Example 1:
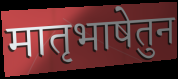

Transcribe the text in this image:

मातृभाषेतुन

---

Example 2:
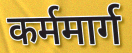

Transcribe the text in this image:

कर्ममार्ग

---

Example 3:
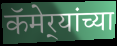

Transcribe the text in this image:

कॅमेर्यांच्या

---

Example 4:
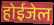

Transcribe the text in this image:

होईजेल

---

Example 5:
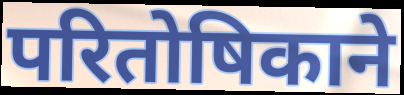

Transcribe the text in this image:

परितोषिकाने